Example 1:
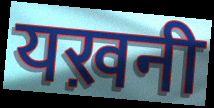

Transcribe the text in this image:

यख़नी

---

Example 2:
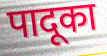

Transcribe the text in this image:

पादूका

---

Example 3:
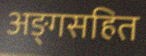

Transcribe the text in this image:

अङ्गसहित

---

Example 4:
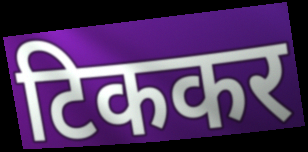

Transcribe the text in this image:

टिककर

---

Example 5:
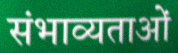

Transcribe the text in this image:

संभाव्यताओं